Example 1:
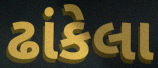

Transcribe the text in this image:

ઢાંકેલા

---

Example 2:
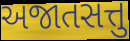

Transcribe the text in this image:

અજાતસત્તુ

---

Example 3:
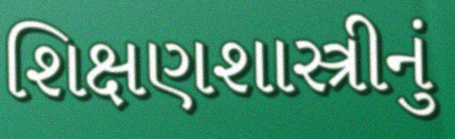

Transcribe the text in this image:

શિક્ષણશાસ્ત્રીનું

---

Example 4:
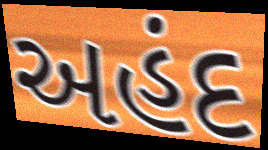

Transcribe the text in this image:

અહંદ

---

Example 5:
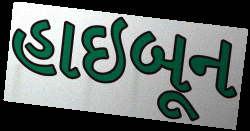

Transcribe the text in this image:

હાઇબૂન